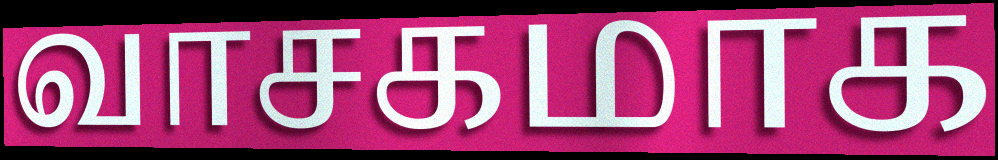
வாசகமாக